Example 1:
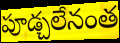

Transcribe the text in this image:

పూడ్చలేనంత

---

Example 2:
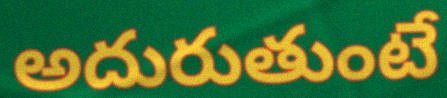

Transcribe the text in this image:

అదురుతుంటే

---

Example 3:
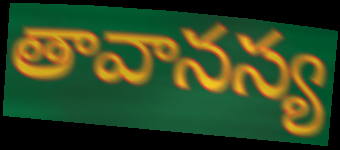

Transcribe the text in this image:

తావానస్య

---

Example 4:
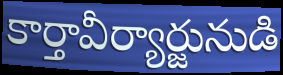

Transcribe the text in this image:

కార్తావీర్యార్జునుడి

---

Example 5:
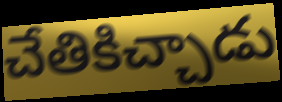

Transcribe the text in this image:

చేతికిచ్చాడు